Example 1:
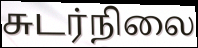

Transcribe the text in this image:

சுடர்நிலை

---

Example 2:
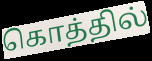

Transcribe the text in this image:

கொத்தில்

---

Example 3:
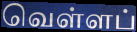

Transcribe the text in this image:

வெள்ளப்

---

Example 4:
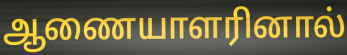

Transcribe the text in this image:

ஆணையாளரினால்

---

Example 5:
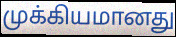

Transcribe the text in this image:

முக்கியமானது